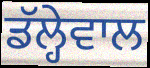
ਡੱਲ੍ਹੇਵਾਲ